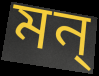
মন্